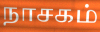
நாசகம்